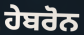
ਹੇਬਰੋਨ